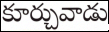
కూర్చువాడు